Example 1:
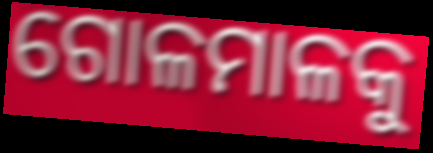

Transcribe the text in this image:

ଗୋଳମାଳକୁ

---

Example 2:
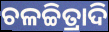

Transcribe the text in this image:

ଚଳଚ୍ଚିତ୍ରାଦି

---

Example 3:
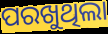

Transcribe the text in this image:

ପରଖୁଥିଲା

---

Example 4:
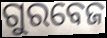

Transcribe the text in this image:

ଗୁରବେଜ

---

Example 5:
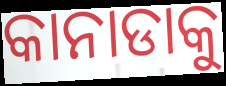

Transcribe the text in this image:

କାନାଡାକୁ